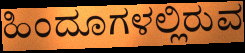
ಹಿಂದೂಗಳಲ್ಲಿರುವ